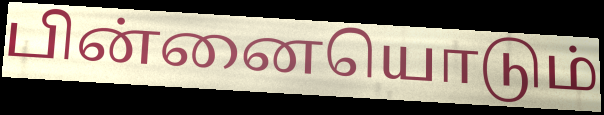
பின்னையொடும்